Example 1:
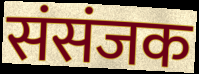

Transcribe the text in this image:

संसंजक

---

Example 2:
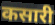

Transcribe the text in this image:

कसारी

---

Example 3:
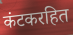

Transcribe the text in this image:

कंटकरहित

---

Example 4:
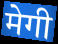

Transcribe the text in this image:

मेगी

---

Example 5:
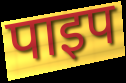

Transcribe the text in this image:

पाइप